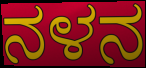
ನಳನ